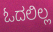
ಓದಲಿಲ್ಲ